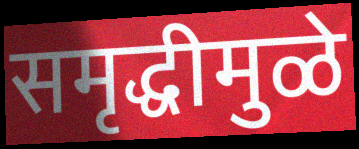
समृद्धीमुळे